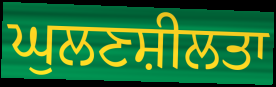
ਘੁਲਣਸ਼ੀਲਤਾ